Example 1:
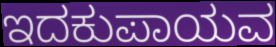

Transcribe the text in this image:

ಇದಕುಪಾಯವ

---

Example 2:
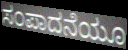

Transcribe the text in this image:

ಸಂಪಾದನೆಯೂ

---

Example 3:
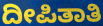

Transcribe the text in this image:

ದೀಪಿತಾತಿ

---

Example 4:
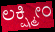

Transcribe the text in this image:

ಲಕ್ಷ್ಮೀಂ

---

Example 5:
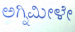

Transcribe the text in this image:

ಅಗ್ನಿಮೀಳೇ